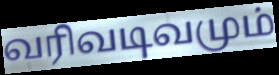
வரிவடிவமும்